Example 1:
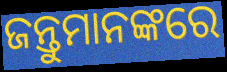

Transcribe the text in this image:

ଜନ୍ତୁମାନଙ୍କରେ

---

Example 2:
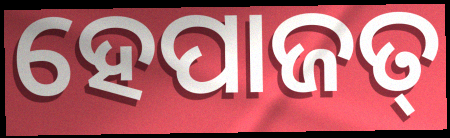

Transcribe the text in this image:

ହେପାଜତ୍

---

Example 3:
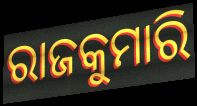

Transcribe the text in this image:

ରାଜକୁମାରି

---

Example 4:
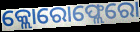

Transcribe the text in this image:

କ୍ଲୋରୋଫ୍ଲେରୋ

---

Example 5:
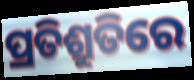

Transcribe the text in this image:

ପ୍ରତିଶ୍ରୁତିରେ